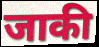
जाकी